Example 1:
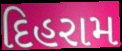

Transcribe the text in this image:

દિહરામ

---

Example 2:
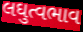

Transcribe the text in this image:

લઘુત્વભાવ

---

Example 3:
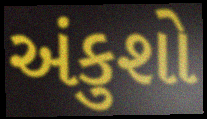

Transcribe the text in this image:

અંકુશો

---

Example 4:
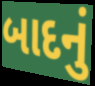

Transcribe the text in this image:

બાદનું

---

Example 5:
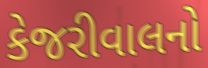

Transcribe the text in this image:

કેજરીવાલનો